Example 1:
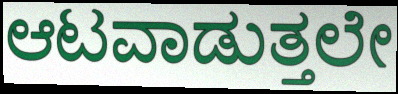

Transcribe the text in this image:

ಆಟವಾಡುತ್ತಲೇ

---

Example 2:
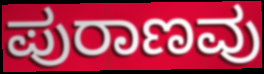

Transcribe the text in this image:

ಪುರಾಣವು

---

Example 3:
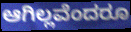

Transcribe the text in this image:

ಆಗಿಲ್ಲವೆಂದರೂ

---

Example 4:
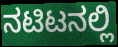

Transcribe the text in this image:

ನಟಿಟನಲ್ಲಿ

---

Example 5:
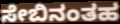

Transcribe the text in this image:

ಸೇಬಿನಂತಹ